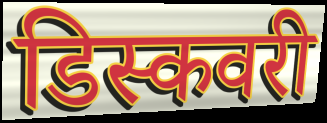
डिस्कवरी